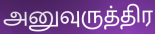
அனுவுருத்திர